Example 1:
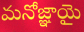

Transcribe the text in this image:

మనోజ్ఞాయై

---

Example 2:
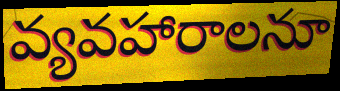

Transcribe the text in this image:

వ్యవహారాలనూ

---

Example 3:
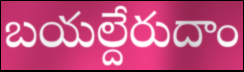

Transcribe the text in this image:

బయల్దేరుదాం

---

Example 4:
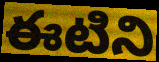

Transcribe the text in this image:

ఈటిని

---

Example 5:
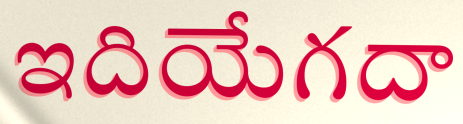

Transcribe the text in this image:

ఇదియేగదా